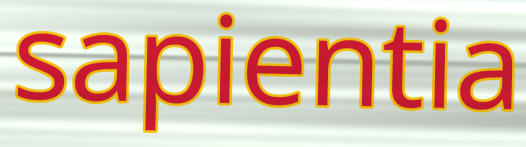
sapientia